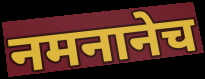
नमनानेच